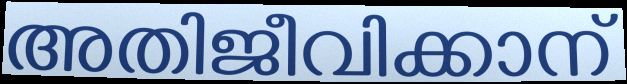
അതിജീവിക്കാന്